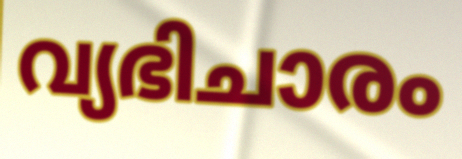
വ്യഭിചാരം